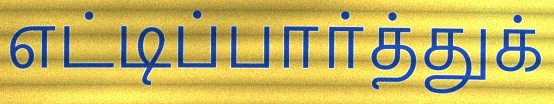
எட்டிப்பார்த்துக்